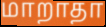
மாறாதா